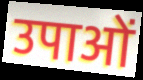
उपाओं